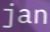
jan